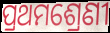
ପ୍ରଥମଶ୍ରେଣୀ